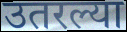
उतरल्या